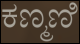
ಕಣ್ಮಣಿ